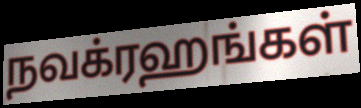
நவக்ரஹங்கள்